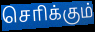
செரிக்கும்